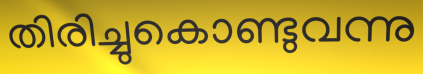
തിരിച്ചുകൊണ്ടുവന്നു